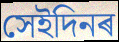
সেইদিনৰ